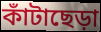
কাঁটাছেড়া